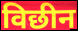
विछीन